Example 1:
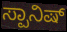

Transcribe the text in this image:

ಸ್ಪಾನಿಷ್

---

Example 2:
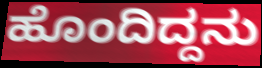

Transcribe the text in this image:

ಹೊಂದಿದ್ದನು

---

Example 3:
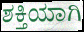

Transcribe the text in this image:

ಶಕ್ತಿಯಾಗಿ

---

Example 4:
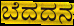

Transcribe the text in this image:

ಬೆದದನ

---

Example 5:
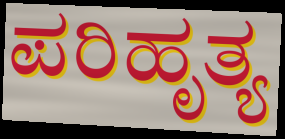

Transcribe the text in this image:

ಪರಿಹೃತ್ಯ